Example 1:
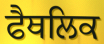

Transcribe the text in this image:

ਫੈਥਲਿਕ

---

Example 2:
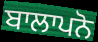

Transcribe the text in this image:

ਬਾਲਾਪਨੋ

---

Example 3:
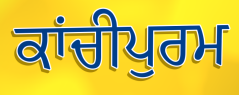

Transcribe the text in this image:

ਕਾਂਚੀਪੁਰਮ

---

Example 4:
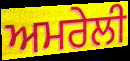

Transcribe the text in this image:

ਅਮਰੇਲੀ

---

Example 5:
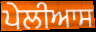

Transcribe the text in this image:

ਪੇਲੀਆਸ